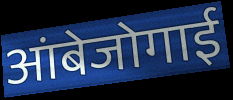
आंबेजोगाई